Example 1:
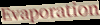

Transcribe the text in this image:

Evaporation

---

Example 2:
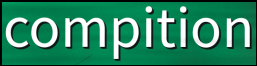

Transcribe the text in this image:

compition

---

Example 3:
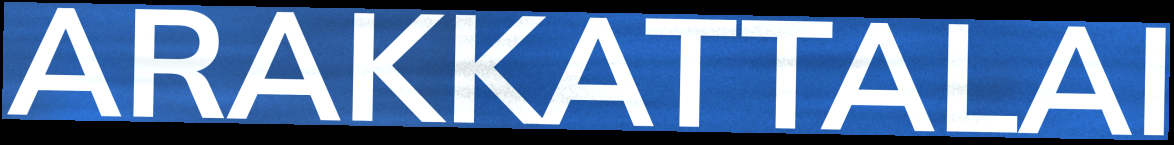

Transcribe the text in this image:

ARAKKATTALAI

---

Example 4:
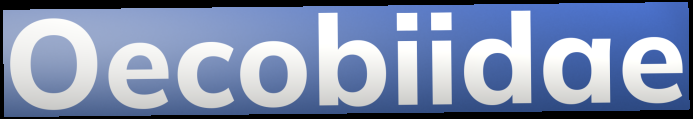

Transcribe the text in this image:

Oecobiidae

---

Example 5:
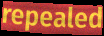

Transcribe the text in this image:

repealed